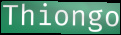
Thiongo